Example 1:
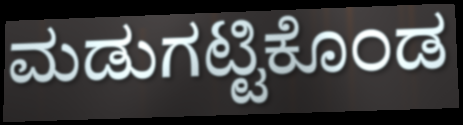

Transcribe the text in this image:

ಮಡುಗಟ್ಟಿಕೊಂಡ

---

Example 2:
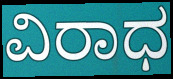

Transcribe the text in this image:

ವಿರಾಧ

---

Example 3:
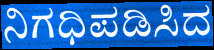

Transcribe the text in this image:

ನಿಗಧಿಪಡಿಸಿದ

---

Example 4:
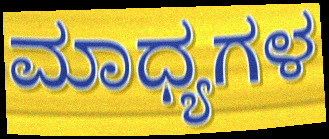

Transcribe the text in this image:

ಮಾಧ್ಯಗಳ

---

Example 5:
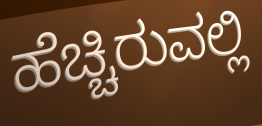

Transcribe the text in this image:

ಹೆಚ್ಚಿರುವಲ್ಲಿ